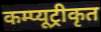
कम्प्यूट्रीकृत